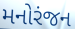
મનોરંજન